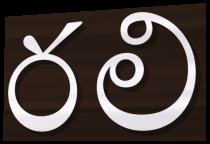
రలి